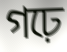
গঢ়ে